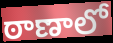
ఠాణాలో